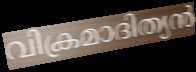
വിക്രമാദിത്യൻ